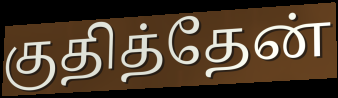
குதித்தேன்